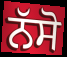
ਨੱਸੋ